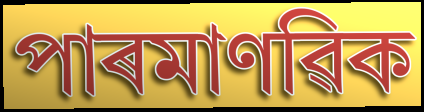
পাৰমাণৱিক